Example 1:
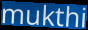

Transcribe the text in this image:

mukthi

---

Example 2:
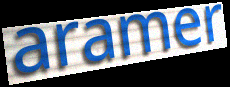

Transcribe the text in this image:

aramer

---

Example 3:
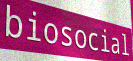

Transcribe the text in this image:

biosocial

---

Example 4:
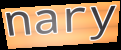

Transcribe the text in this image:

nary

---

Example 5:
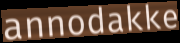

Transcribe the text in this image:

annodakke